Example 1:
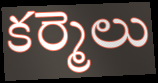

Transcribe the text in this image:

కర్మెలు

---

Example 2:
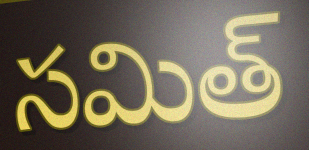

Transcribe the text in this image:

సమిత్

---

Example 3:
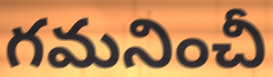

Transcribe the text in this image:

గమనించీ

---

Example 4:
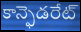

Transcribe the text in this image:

కాన్ఫెడరేట్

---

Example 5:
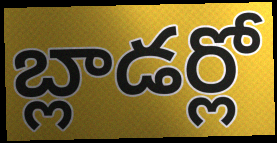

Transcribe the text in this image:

బ్లాడర్లో